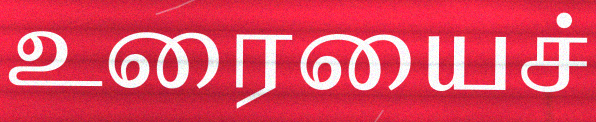
உரையைச்